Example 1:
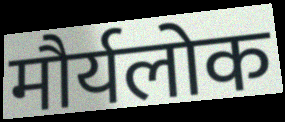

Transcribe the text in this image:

मौर्यलोक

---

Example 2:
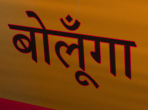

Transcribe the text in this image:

बोलूँगा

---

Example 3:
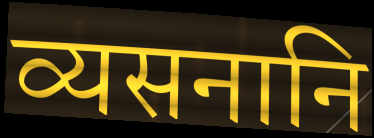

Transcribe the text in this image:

व्यसनानि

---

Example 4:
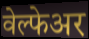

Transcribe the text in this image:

वेल्फेअर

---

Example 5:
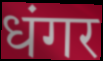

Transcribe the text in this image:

धंगर